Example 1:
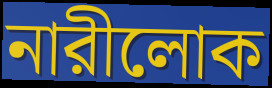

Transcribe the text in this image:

নারীলোক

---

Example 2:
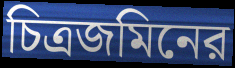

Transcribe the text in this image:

চিত্রজমিনের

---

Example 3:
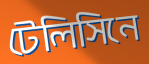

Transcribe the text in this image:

টেলিসিনে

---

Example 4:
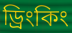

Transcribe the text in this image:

ড্রিংকিং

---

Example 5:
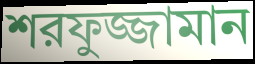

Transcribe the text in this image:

শরফুজ্জামান